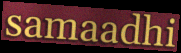
samaadhi